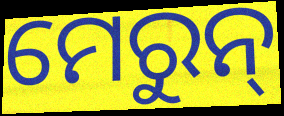
ମେରୁନ୍